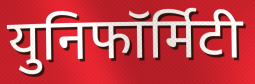
युनिफॉर्मिटी